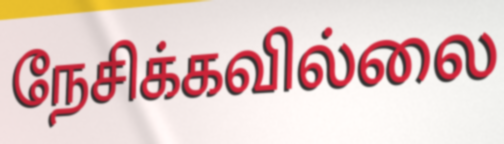
நேசிக்கவில்லை